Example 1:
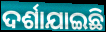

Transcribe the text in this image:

ଦର୍ଶାଯାଇଛି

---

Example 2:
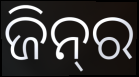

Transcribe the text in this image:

ଜିନ୍‍ର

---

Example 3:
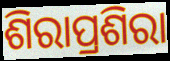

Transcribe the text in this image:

ଶିରାପ୍ରଶିରା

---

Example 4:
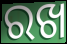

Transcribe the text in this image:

ରଖ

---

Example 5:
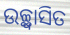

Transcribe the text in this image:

ଉଚ୍ଛ୍ୱାସିତ